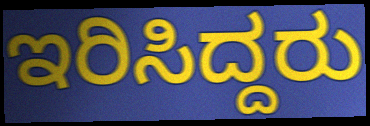
ಇರಿಸಿದ್ದರು